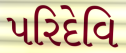
પરિદેવિ